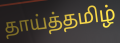
தாய்த்தமிழ்